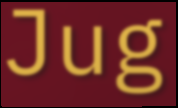
Jug